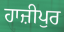
ਹਾਜ਼ੀਪੁਰ